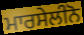
ਮਾਰਸੇਲੀਨੋ